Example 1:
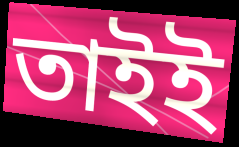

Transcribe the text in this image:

তাইই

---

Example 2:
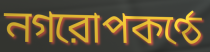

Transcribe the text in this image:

নগরোপকণ্ঠে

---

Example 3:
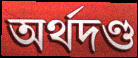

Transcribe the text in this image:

অর্থদণ্ড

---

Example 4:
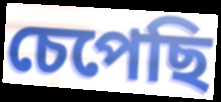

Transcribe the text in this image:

চেপেছি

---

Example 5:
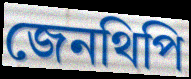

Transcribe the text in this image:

জেনথিপি